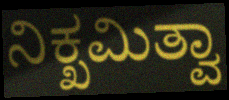
ನಿಕ್ಖಮಿತ್ವಾ